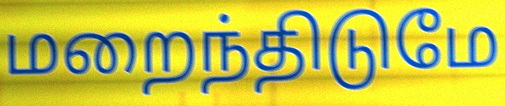
மறைந்திடுமே